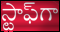
స్టాఫ్‌గా